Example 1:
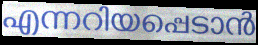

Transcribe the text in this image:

എന്നറിയപ്പെടാൻ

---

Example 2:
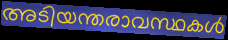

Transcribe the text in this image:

അടിയന്തരാവസ്ഥകൾ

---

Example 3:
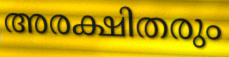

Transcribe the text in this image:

അരക്ഷിതരും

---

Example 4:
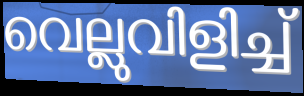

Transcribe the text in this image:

വെല്ലുവിളിച്ച്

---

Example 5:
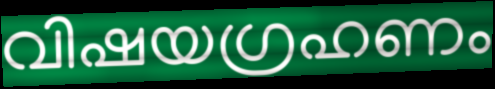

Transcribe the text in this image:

വിഷയഗ്രഹണം